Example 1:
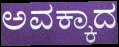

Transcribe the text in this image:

ಅವಕ್ಕಾದ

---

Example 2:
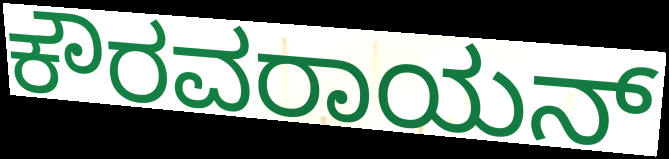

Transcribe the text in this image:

ಕೌರವರಾಯನ್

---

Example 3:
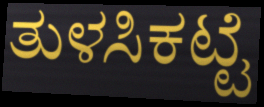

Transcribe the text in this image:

ತುಳಸಿಕಟ್ಟೆ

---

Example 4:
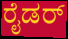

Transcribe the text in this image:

ರೈಡರ್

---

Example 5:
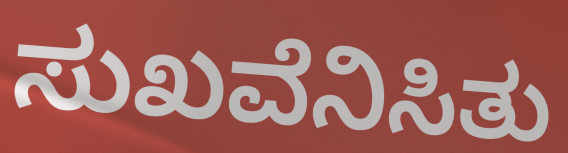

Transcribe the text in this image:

ಸುಖವೆನಿಸಿತು